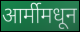
आर्मीमधून